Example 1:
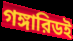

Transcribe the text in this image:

গঙ্গারিডই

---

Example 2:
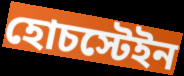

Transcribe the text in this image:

হোচস্টেইন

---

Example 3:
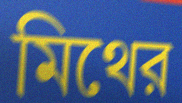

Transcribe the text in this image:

মিথের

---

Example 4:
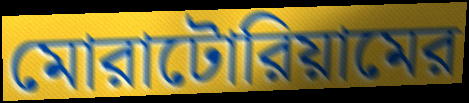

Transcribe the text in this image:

মোরাটোরিয়ামের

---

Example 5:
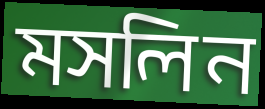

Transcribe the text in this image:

মসলিন